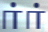
ர்ர்